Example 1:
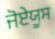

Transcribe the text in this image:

ਜੋਏਯੂਸ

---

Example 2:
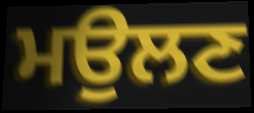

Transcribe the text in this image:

ਮਉਲਣ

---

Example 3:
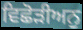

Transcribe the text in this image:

ਵਿਛੋੜੀਅਨੁ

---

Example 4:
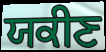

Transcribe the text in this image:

ਯਕੀਣ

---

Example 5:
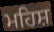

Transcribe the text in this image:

ਮਹਿਸ਼